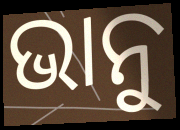
ଭାନୁ